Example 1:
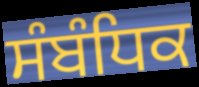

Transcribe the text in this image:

ਸੰਬੰਧਿਕ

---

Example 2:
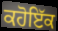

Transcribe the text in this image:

ਕਹੋਇੱਕ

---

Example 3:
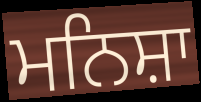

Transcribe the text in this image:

ਮਨਿਸ਼ਾ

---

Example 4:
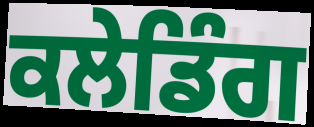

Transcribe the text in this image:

ਕਲੇਡਿੰਗ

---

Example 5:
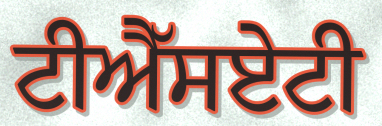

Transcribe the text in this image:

ਟੀਐੱਸਏਟੀ